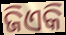
ଜିଏକି